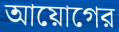
আয়োগের